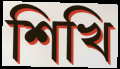
শিখি